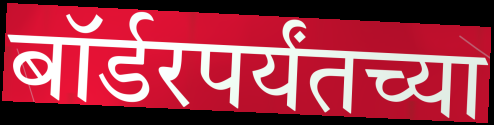
बॉर्डरपर्यंतच्या